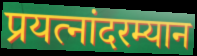
प्रयत्नांदरम्यान